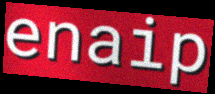
enaip